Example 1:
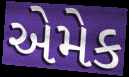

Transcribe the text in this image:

એમેક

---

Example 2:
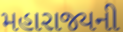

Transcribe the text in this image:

મહારાજ્યની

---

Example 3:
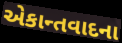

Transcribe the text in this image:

એકાન્તવાદના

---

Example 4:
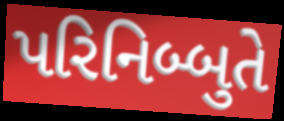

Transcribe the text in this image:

પરિનિબ્બુતે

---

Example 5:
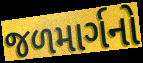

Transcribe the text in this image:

જળમાર્ગનો